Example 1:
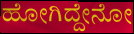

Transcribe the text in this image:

ಹೋಗಿದ್ದೇನೋ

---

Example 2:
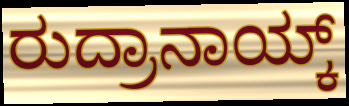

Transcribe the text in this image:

ರುದ್ರಾನಾಯ್ಕ್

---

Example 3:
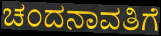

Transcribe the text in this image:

ಚಂದನಾವತಿಗೆ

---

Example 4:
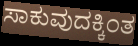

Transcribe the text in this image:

ಸಾಕುವುದಕ್ಕಿಂತ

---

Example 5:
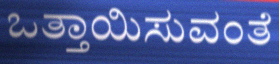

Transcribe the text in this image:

ಒತ್ತಾಯಿಸುವಂತೆ